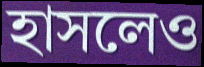
হাসলেও